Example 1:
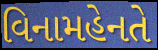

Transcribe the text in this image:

વિનામહેનતે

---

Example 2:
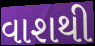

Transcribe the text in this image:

વાશથી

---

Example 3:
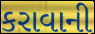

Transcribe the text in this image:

કરાવાની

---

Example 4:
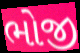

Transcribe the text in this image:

ભોજી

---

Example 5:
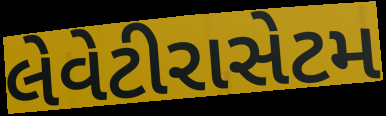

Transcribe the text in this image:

લેવેટીરાસેટમ